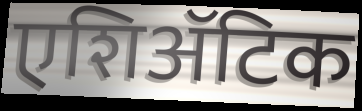
एशिॲटिक